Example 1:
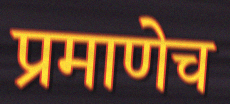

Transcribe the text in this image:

प्रमाणेच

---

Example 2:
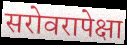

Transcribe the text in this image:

सरोवरापेक्षा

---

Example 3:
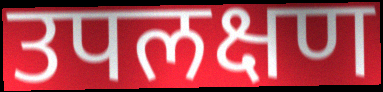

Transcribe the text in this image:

उपलक्षण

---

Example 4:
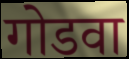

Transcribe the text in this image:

गोडवा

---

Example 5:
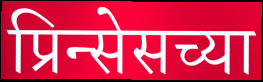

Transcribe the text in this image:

प्रिन्सेसच्या